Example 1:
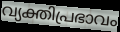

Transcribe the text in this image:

വ്യക്തിപ്രഭാവം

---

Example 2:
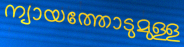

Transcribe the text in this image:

ന്യായത്തോടുമുള്ള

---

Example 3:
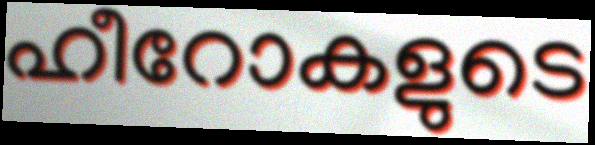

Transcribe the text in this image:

ഹീറോകളുടെ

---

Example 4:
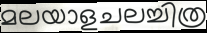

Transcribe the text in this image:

മലയാളചലച്ചിത്ര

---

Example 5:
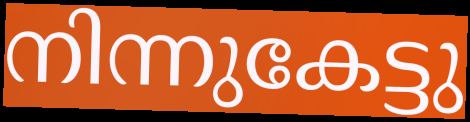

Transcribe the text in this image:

നിന്നുകേട്ടു